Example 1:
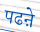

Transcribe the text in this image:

पढऩे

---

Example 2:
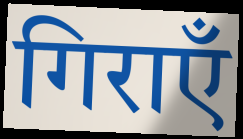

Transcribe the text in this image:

गिराएँ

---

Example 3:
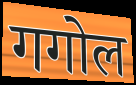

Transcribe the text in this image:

गगोल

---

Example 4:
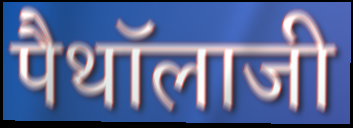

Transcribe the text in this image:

पैथॉलाजी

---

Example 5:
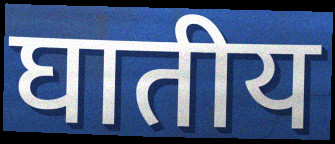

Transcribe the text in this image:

घातीय